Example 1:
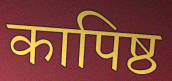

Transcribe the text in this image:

कापिष्ठ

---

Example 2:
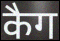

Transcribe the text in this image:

कैग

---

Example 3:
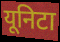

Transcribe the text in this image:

यूनिटा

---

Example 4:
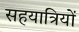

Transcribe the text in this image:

सहयात्रियों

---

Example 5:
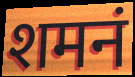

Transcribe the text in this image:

शमनं